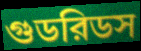
গুডরিডস